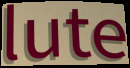
lute